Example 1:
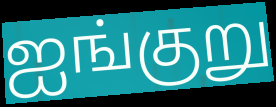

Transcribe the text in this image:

ஐங்குறு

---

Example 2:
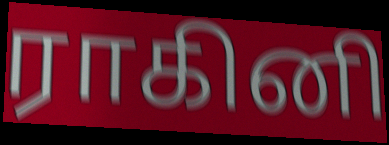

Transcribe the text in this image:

ராகினி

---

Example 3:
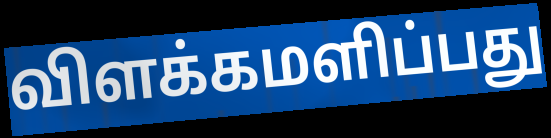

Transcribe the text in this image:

விளக்கமளிப்பது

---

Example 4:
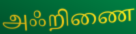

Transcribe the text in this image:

அஃறிணை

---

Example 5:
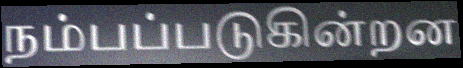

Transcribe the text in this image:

நம்பப்படுகின்றன